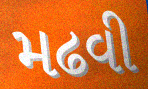
મઢવી